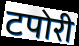
टपोरी